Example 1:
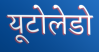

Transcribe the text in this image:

यूटोलेडो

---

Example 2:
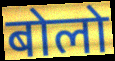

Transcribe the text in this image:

बोलो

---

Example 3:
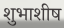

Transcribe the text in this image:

शुभाशीष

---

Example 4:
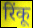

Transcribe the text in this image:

रिंकू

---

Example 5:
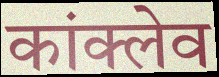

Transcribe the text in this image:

कांक्लेव